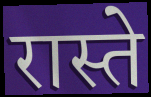
रास्ते